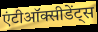
एंटीऑक्सीडेंट्स